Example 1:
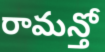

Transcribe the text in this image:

రామన్తో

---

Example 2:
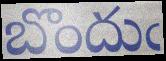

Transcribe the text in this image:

బొందుఁ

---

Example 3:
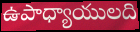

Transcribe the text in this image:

ఉపాధ్యాయులది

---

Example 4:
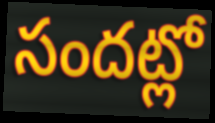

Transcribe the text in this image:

సందట్లో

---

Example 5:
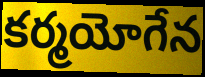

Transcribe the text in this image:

కర్మయోగేన